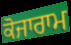
ਕੋਜਾਰਾਮ